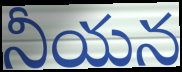
నీయన